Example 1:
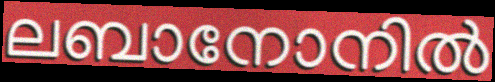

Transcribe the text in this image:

ലബാനോനിൽ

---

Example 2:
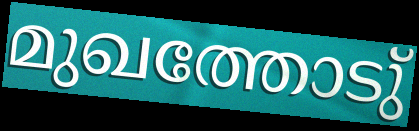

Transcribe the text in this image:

മുഖത്തോടു്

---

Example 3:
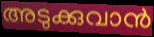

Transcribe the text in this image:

അടുക്കുവാൻ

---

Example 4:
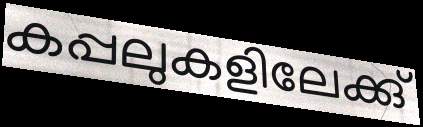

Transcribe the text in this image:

കപ്പലുകളിലേക്കു്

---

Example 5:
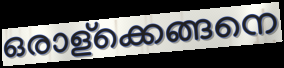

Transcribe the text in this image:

ഒരാള്ക്കെങ്ങനെ